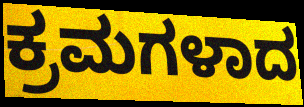
ಕ್ರಮಗಳಾದ